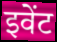
इवेंट